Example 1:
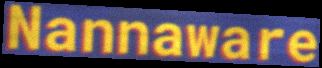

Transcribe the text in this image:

Nannaware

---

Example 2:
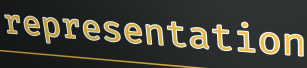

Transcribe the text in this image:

representation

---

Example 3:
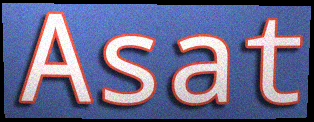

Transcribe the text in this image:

Asat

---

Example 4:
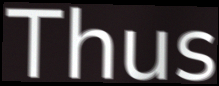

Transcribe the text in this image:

Thus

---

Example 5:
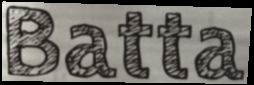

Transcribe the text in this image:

Batta